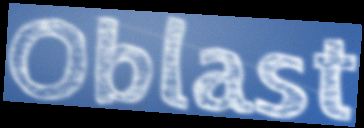
Oblast